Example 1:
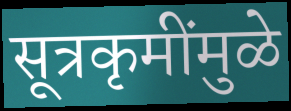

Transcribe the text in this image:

सूत्रकृमींमुळे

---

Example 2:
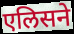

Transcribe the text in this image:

एलिसने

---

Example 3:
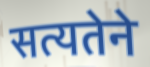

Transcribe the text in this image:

सत्यतेने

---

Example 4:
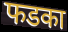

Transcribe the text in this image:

फडका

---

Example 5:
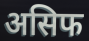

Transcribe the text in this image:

असिफ